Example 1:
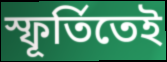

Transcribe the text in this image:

স্ফূর্তিতেই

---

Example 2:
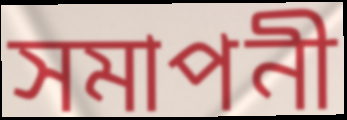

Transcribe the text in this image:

সমাপনী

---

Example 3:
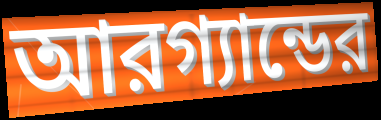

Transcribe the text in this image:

আরগ্যান্ডের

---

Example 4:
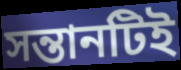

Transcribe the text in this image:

সন্তানটিই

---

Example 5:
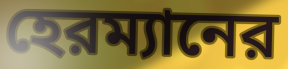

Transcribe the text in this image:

হেরম্যানের